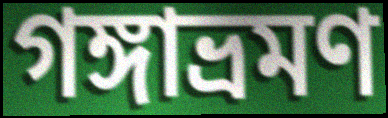
গঙ্গাভ্রমণ